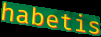
habetis